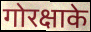
गोरक्षाके